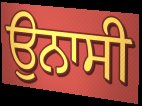
ਉਨਾਸੀ